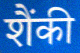
शैंकी